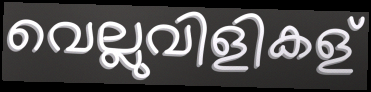
വെല്ലുവിളികള്